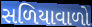
સળિયાવાળો